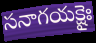
సనాగయక్షైః